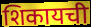
शिकायची